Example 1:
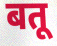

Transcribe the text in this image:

बतू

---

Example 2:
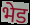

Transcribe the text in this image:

भेड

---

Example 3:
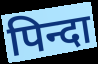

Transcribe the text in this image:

पिन्दा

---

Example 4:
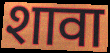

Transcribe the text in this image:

शावा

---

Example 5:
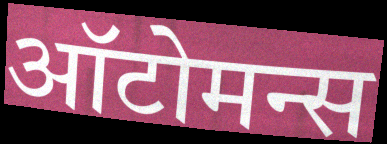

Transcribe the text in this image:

ऑटोमन्स